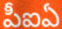
పీఐఏ